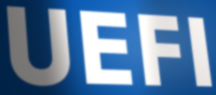
UEFI